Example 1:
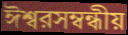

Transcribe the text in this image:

ঈশ্বরসম্বন্ধীয়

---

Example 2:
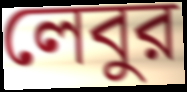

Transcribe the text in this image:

লেবুর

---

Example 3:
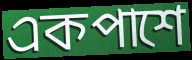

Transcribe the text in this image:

একপাশে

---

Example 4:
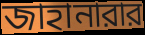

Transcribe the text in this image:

জাহানারার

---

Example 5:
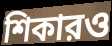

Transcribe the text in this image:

শিকারও